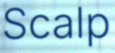
Scalp